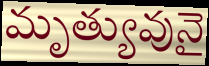
మృత్యువునై